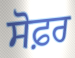
ਸੋਫ਼ਰ